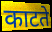
काटते